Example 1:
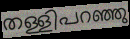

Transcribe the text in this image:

തള്ളിപറഞ്ഞു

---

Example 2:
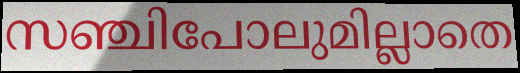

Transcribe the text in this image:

സഞ്ചിപോലുമില്ലാതെ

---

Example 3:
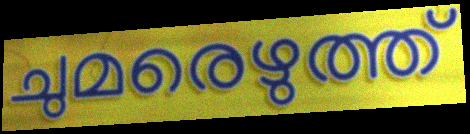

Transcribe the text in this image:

ചുമരെഴുത്ത്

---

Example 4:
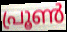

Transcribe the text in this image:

പ്രൂൺ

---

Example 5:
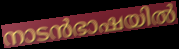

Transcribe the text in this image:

നാടൻഭാഷയിൽ